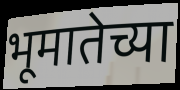
भूमातेच्या